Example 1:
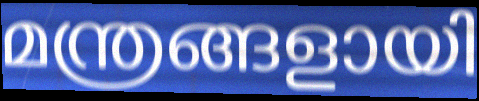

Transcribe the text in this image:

മന്ത്രങ്ങളായി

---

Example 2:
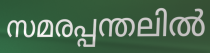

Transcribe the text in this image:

സമരപ്പന്തലിൽ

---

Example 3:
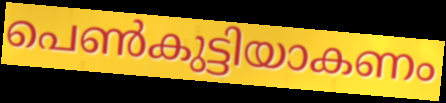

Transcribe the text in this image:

പെൺകുട്ടിയാകണം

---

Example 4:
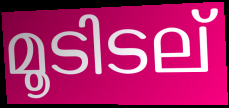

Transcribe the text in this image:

മൂടിടല്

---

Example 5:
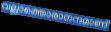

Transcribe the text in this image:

വല്ലാത്തൊരാനന്ദമാണ്